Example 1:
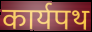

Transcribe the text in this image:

कार्यपथ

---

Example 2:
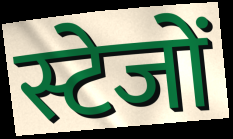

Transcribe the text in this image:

स्टेजों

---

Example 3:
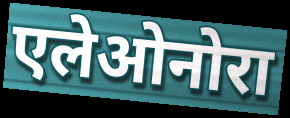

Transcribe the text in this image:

एलेओनोरा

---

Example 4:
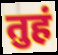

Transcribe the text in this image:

तुहं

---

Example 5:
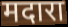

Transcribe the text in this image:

मदारा